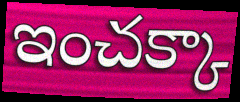
ఇంచక్కా